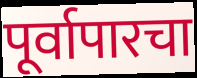
पूर्वापारचा